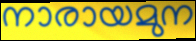
നാരായമുന